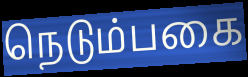
நெடும்பகை